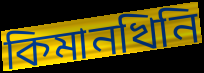
কিমানখিনি